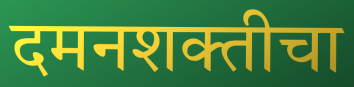
दमनशक्तीचा